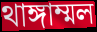
থাঙ্গাম্মল